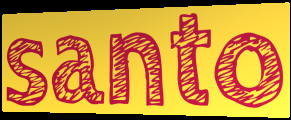
santo